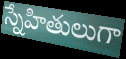
స్నేహితులుగా